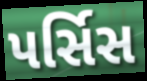
પર્સિસ